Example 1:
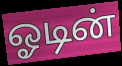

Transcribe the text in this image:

ஓடின்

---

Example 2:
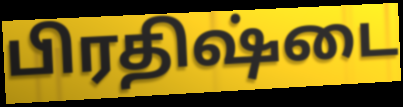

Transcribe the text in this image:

பிரதிஷ்டை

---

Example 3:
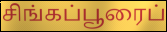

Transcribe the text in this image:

சிங்கப்பூரைப்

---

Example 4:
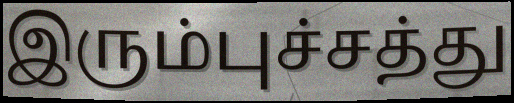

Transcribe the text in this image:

இரும்புச்சத்து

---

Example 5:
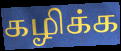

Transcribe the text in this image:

கழிக்க